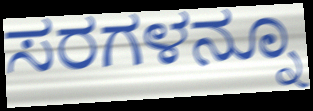
ಸರಗಳನ್ನೂ